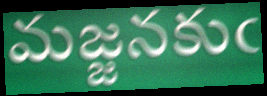
మజ్జనకుఁ